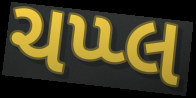
ચપ્પ્લ